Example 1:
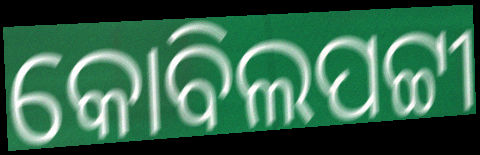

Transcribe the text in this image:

କୋବିଲପଟ୍ଟୀ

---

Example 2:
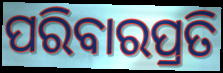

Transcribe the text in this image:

ପରିବାରପ୍ରତି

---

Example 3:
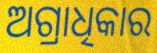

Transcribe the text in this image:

ଅଗ୍ରାଧିକାର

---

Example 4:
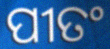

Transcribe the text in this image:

ପୀତଂ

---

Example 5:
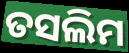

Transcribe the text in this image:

ତସଲିମ